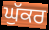
ਘੁੱਕਰ